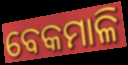
ବେକମାଳି